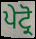
ਪੇਟ੍ਰੋ